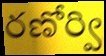
రణోర్వి